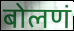
बोलणं